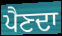
ਪੈਣਦਾ